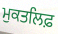
ਮੁਕਤਲਿਫ਼